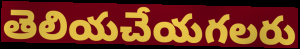
తెలియచేయగలరు